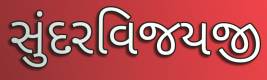
સુંદરવિજયજી